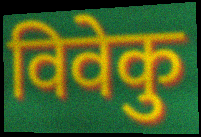
विवेकु